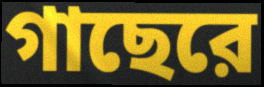
গাছেরে